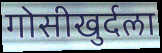
गोसीखुर्दला